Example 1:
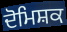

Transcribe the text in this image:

ਦੋਮਿਸ਼ਕ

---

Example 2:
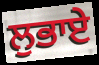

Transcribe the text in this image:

ਲੁਭਾਏ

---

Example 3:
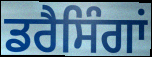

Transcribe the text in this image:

ਡਰੈਸਿੰਗਾਂ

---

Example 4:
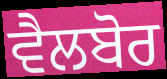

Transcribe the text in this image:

ਵੈਲਬੋਰ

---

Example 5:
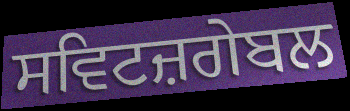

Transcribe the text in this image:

ਸਵਿਟਜ਼ਗੇਬਲ